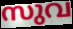
സുവ